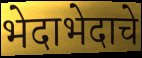
भेदाभेदाचे